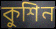
কুশিন